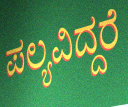
ಪಲ್ಯವಿದ್ದರೆ